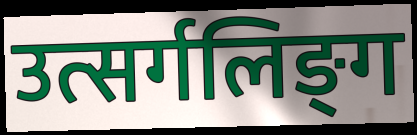
उत्सर्गलिङ्ग